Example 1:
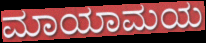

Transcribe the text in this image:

ಮಾಯಾಮಯ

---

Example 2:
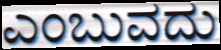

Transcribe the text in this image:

ಎಂಬುವದು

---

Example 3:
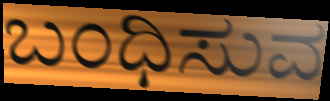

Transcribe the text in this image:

ಬಂಧಿಸುವ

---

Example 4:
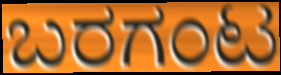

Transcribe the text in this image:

ಬರಗಂಟ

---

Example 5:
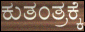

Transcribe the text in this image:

ಕುತಂತ್ರಕ್ಕೆ